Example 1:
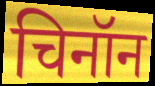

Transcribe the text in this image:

चिनॉन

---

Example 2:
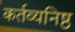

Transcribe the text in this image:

कर्तव्यनिष्ठ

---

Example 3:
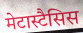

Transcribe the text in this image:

मेटास्टैसिस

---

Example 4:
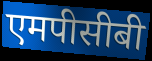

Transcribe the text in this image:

एमपीसीबी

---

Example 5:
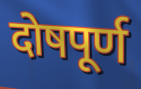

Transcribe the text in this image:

दोषपूर्ण